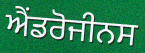
ਐਂਡਰੋਜੀਨਸ